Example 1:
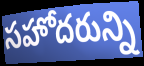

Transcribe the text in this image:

సహోదరున్ని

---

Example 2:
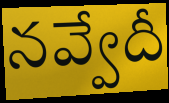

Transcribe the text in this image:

నవ్వేదీ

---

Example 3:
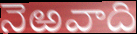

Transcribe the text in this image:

నెఱవాది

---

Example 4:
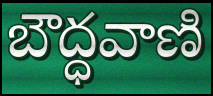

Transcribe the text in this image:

బౌద్ధవాణి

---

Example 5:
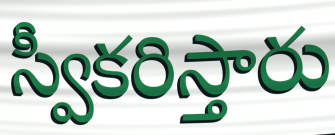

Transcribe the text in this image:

స్వీకరిస్తారు